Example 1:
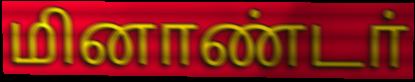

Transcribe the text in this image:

மினாண்டர்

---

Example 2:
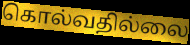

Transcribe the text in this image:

கொல்வதில்லை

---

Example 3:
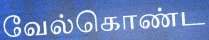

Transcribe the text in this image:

வேல்கொண்ட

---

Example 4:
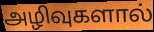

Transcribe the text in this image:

அழிவுகளால்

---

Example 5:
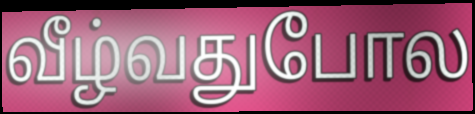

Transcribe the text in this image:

வீழ்வதுபோல